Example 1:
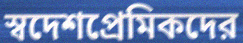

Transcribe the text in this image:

স্বদেশপ্রেমিকদের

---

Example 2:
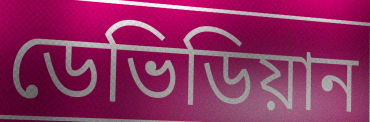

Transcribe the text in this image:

ডেভিডিয়ান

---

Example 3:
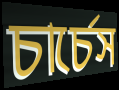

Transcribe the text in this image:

চার্চেস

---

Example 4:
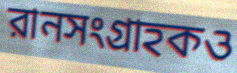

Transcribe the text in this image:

রানসংগ্রাহকও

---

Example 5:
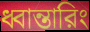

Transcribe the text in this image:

ধ্বান্তারিং